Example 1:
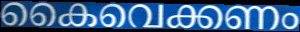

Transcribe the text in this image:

കൈവെക്കണം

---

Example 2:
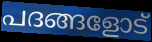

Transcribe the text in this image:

പദങ്ങളോട്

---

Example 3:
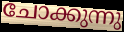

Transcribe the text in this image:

ചോക്കുന്നു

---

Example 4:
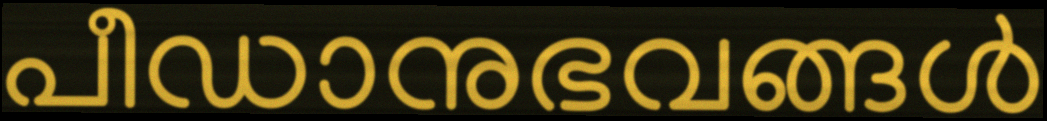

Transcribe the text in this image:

പീഡാനുഭവങ്ങൾ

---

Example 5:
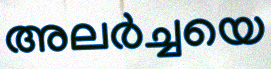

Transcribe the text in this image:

അലർച്ചയെ